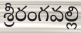
శ్రీరంగవల్లి